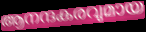
ആനന്ദകരവുമായ